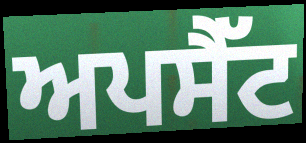
ਅਪਸੈੱਟ